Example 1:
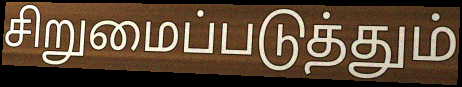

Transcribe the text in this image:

சிறுமைப்படுத்தும்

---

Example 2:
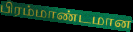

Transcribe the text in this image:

பிரம்மாண்டமான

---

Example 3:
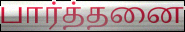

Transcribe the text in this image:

பார்த்தனை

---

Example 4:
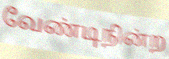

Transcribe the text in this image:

வேண்டிநின்ற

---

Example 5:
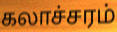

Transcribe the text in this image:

கலாச்சரம்